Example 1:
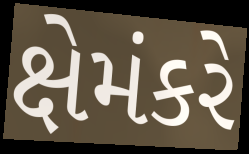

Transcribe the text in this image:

ક્ષેમંકરે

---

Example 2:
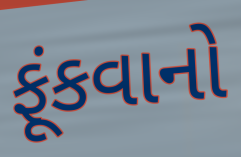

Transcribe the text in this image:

ફૂંકવાનો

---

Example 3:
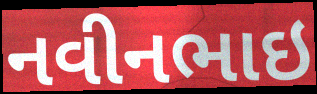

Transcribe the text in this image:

નવીનભાઇ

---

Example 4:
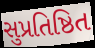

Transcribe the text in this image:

સુપ્રતિષ્ઠિત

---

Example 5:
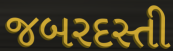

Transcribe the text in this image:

જબરદસ્તી